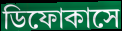
ডিফোকাসে